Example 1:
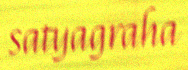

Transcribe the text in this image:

satyagraha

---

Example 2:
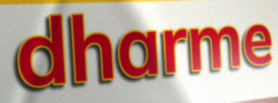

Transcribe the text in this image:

dharme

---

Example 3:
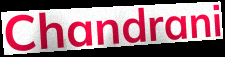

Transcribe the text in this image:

Chandrani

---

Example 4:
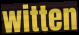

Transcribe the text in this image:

witten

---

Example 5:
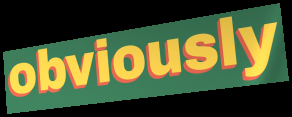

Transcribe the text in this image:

obviously